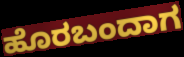
ಹೊರಬಂದಾಗ